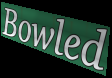
Bowled